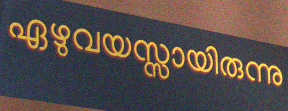
ഏഴുവയസ്സായിരുന്നു